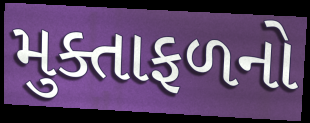
મુક્તાફળનો